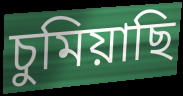
চুমিয়াছি